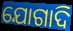
ଯୋଗାଦି